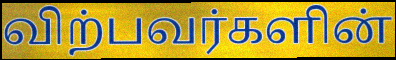
விற்பவர்களின்